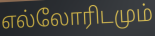
எல்லோரிடமும்